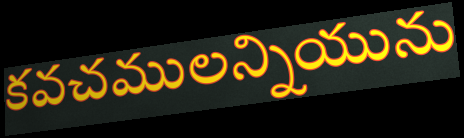
కవచములన్నియును